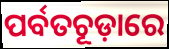
ପର୍ବତଚୂଡ଼ାରେ